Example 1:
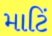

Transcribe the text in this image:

માટિં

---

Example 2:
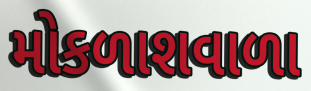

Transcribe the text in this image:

મોકળાશવાળા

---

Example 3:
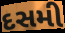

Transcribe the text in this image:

દસમી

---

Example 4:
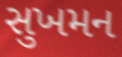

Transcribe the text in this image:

સુખમન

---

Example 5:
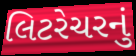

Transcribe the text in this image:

લિટરેચરનું